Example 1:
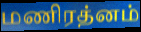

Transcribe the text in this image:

மணிரத்னம்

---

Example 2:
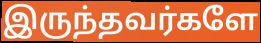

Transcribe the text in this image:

இருந்தவர்களே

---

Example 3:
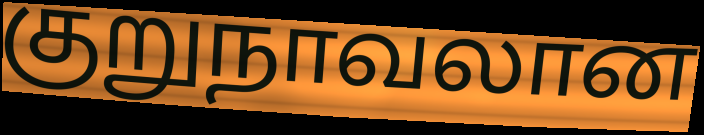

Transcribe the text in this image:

குறுநாவலான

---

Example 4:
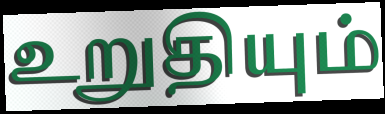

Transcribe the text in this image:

உறுதியும்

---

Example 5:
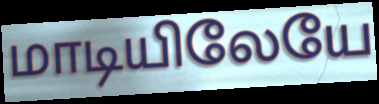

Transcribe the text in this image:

மாடியிலேயே